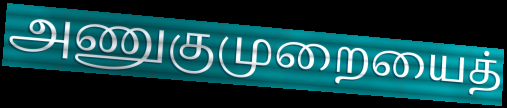
அணுகுமுறையைத்